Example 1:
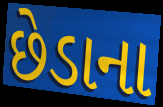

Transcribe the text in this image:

છેડાના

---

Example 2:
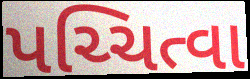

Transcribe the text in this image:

પચ્ચિત્વા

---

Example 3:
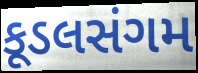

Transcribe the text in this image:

કૂડલસંગમ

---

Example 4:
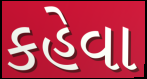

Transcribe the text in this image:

કહેવા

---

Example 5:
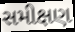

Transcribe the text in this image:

સમીક્ષણ